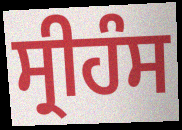
ਸ੍ਰੀਹੰਸ